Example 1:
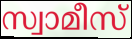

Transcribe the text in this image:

സ്വാമീസ്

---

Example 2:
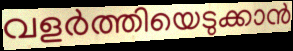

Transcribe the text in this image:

വളർത്തിയെടുക്കാൻ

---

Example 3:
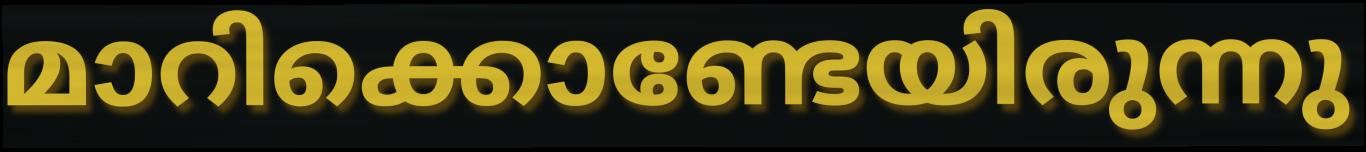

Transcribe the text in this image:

മാറിക്കൊണ്ടേയിരുന്നു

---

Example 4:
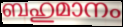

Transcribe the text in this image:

ബഹുമാനം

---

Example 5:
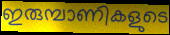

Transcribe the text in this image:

ഇരുമ്പാണികളുടെ